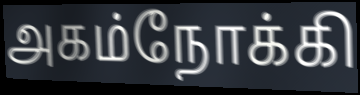
அகம்நோக்கி